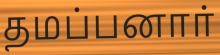
தமப்பனார்